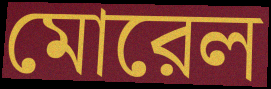
মোরেল